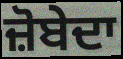
ਜ਼ੋਬੇਦਾ